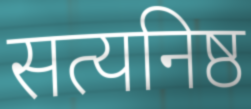
सत्यनिष्ठ